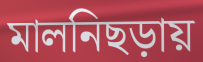
মালনিছড়ায়